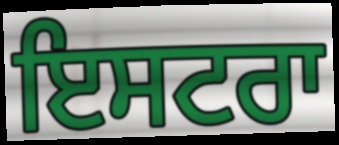
ਇਸਟਰਾ